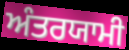
ਅੰਤਰਯਾਮੀ